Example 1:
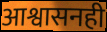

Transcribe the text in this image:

आश्वासनही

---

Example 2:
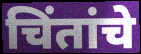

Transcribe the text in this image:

चिंतांचे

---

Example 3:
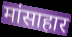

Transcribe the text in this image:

मांसाहार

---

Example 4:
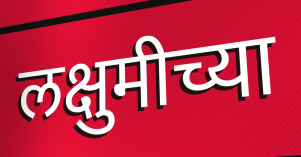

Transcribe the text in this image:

लक्षुमीच्या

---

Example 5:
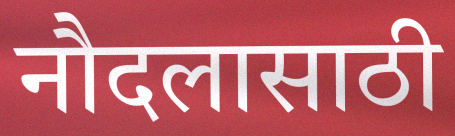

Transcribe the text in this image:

नौदलासाठी